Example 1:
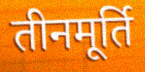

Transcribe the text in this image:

तीनमूर्ति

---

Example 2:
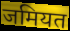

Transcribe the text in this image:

जमियत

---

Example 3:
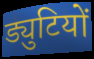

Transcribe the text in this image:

ड्युटियों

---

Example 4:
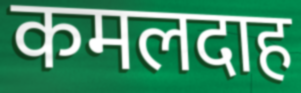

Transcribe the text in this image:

कमलदाह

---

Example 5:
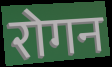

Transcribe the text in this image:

रोगन